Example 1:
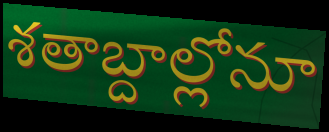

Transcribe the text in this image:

శతాబ్దాల్లోనూ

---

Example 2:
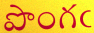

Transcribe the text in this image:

పొంగఁ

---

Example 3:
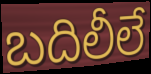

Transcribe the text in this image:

బదిలీలే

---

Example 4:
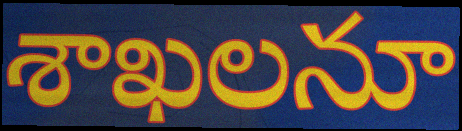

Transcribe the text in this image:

శాఖలనూ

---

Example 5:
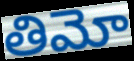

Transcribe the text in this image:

తిమో